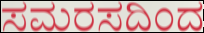
ಸಮರಸದಿಂದ